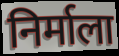
निर्माला